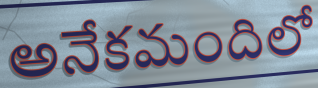
అనేకమందిలో